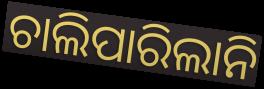
ଚାଲିପାରିଲାନି